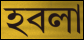
হবলা